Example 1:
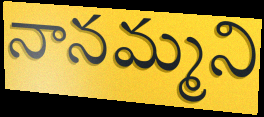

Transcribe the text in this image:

నానమ్మని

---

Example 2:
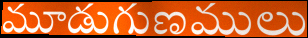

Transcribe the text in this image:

మూడుగుణములు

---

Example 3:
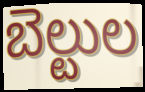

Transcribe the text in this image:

బెల్టుల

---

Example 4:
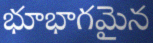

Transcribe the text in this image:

భూభాగమైన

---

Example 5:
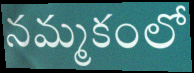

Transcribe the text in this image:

నమ్మకంలో